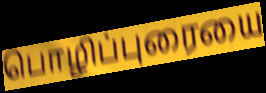
பொழிப்புரையை